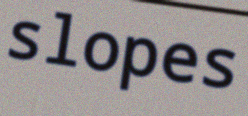
slopes